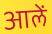
आलें